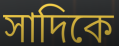
সাদিকে